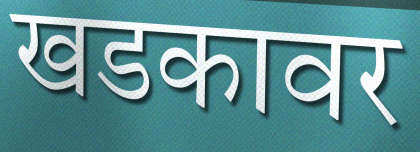
खडकावर